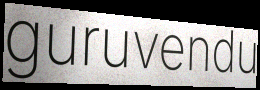
guruvendu